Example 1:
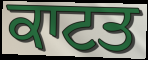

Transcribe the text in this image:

ਕਾਟਤ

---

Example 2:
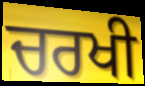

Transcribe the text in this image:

ਚਰਖੀ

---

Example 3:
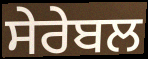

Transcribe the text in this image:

ਸੇਰੇਬਲ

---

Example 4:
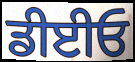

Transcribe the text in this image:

ਡੀਈਓ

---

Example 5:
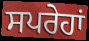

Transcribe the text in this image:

ਸਪਰੇਹਾਂ